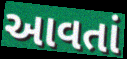
આવતાં